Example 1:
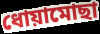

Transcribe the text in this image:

ধোয়ামোছা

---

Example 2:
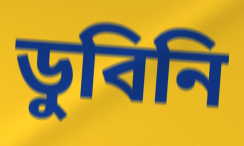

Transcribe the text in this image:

ডুবিনি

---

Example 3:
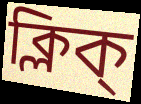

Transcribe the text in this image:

ক্লিক্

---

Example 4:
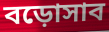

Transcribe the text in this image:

বড়োসাব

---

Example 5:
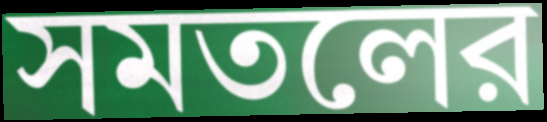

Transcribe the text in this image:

সমতলের